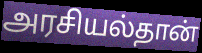
அரசியல்தான்